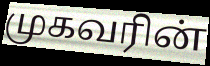
முகவரின்